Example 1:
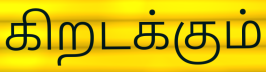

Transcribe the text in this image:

கிறடக்கும்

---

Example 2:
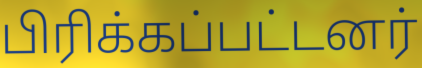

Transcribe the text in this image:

பிரிக்கப்பட்டனர்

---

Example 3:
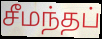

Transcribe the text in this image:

சீமந்தப்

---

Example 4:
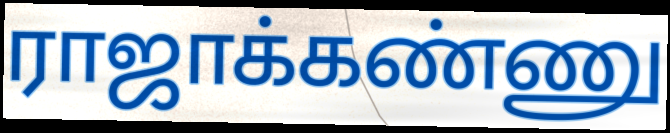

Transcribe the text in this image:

ராஜாக்கண்ணு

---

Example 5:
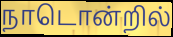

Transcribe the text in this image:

நாடொன்றில்